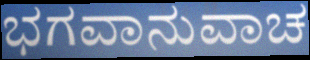
ಭಗವಾನುವಾಚ